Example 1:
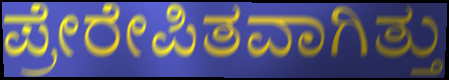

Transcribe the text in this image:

ಪ್ರೇರೇಪಿತವಾಗಿತ್ತು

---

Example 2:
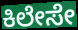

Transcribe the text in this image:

ಕಿಲೇಸೇ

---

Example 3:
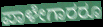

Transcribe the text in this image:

ಪಾಳೇಗಾರರೂ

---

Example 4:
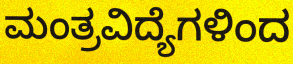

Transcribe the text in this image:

ಮಂತ್ರವಿದ್ಯೆಗಳಿಂದ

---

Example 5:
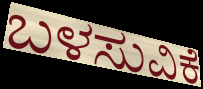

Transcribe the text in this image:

ಬಳಸುವಿಕೆ